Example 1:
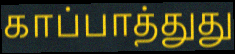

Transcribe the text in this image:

காப்பாத்துது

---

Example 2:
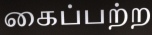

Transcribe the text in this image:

கைப்பற்ற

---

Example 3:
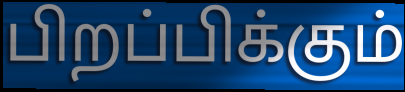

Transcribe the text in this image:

பிறப்பிக்கும்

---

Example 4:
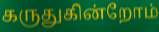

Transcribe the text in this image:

கருதுகின்றோம்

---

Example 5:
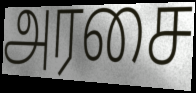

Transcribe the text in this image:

அரசை